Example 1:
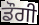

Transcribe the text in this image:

ਡੌਗੀ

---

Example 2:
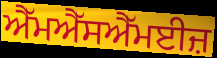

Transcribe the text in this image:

ਐੱਮਐੱਸਐੱਮਈਜ਼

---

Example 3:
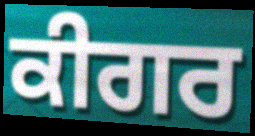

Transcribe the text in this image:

ਕੀਗਰ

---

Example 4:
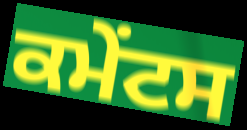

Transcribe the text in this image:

ਕਮੇੰਟਸ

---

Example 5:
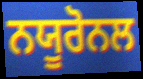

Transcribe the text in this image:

ਨਯੂਰੋਨਲ